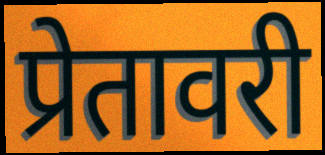
प्रेतावरी